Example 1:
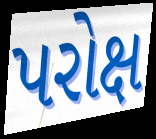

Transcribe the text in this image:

પરોક્ષ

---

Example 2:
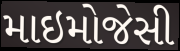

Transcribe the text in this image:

માઇમોજેસી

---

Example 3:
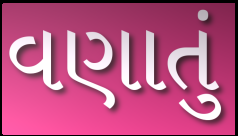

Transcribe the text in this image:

વણાતું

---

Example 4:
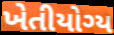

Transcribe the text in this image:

ખેતીયોગ્ય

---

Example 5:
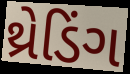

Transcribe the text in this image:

થ્રેડિંગ